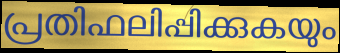
പ്രതിഫലിപ്പിക്കുകയും